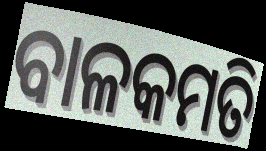
ବାଳକମତି